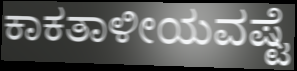
ಕಾಕತಾಳೀಯವಷ್ಟೆ